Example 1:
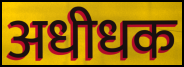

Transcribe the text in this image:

अधीधक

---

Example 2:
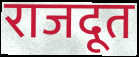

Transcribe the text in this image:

राजदूत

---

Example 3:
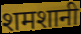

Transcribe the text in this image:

शमशानी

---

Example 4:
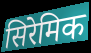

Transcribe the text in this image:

सिरेमिक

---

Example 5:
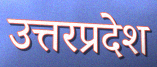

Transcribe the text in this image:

उत्तरप्रदेश